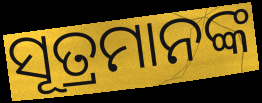
ସୂତ୍ରମାନଙ୍କ